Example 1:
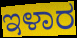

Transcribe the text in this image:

ಇಳಾರ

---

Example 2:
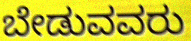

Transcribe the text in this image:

ಬೇಡುವವರು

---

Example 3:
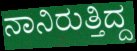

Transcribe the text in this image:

ನಾನಿರುತ್ತಿದ್ದ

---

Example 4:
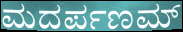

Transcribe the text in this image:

ಮದರ್ಪಣಮ್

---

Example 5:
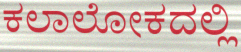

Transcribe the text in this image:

ಕಲಾಲೋಕದಲ್ಲಿ